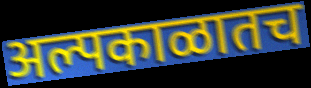
अल्पकाळातच